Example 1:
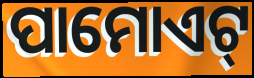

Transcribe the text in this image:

ପାମୋଏଟ୍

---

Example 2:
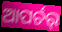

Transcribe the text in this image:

ଆପର୍ଚର୍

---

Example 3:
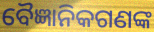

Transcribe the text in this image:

ବୈଜ୍ଞାନିକଗଣଙ୍କ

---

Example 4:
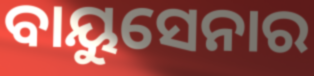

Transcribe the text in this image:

ବାୟୁସେନାର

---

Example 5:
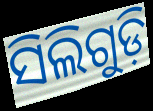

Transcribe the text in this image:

ସିଲିଗୁଡ଼ି